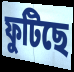
ফুটিছে